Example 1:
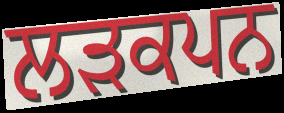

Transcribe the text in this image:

ਲੜਕਪਨ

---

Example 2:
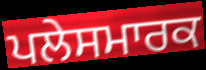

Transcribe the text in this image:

ਪਲੇਸਮਾਰਕ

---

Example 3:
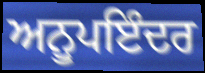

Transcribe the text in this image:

ਅਨੂਪਇੰਦਰ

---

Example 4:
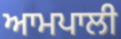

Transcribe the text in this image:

ਆਮਪਾਲੀ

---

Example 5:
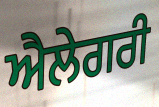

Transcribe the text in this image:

ਐਲੇਗਰੀ